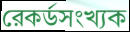
রেকর্ডসংখ্যক